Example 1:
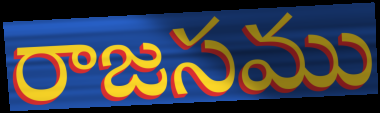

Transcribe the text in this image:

రాజసము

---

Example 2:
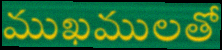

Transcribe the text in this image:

ముఖములతో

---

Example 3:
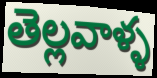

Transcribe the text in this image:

తెల్లవాళ్ళ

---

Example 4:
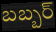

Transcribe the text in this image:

బబ్బర్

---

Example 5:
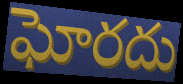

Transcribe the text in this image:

ఘోరదు